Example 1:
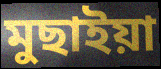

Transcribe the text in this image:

মুছাইয়া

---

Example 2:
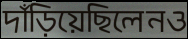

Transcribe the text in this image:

দাঁড়িয়েছিলেনও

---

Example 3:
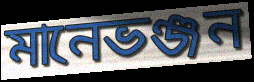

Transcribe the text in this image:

মানেভঞ্জন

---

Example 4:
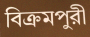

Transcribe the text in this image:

বিক্রমপুরী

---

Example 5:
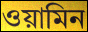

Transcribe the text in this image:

ওয়ামিন